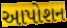
આપોશન